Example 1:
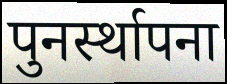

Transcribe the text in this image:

पुनर्स्थापना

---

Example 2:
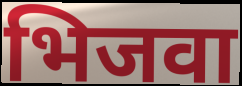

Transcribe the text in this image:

भिजवा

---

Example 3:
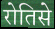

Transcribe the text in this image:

रोतिसे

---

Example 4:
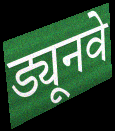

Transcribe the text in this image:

ड्यूनवे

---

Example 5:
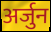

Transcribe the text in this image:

अर्जुन